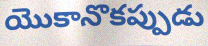
యొకానొకప్పుడు